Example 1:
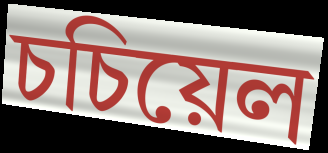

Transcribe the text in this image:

চচিয়েল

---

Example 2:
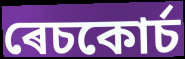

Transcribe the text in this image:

ৰেচকোৰ্চ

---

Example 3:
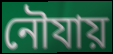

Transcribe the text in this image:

নৌযায়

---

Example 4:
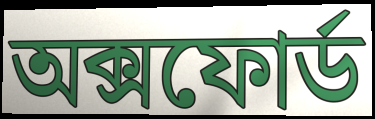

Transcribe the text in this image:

অক্সফোৰ্ড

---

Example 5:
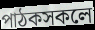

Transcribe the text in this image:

পাঠকসকলে